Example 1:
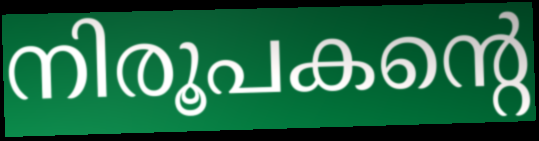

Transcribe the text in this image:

നിരൂപകന്റെ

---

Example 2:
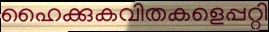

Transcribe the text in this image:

ഹൈക്കുകവിതകളെപ്പറ്റി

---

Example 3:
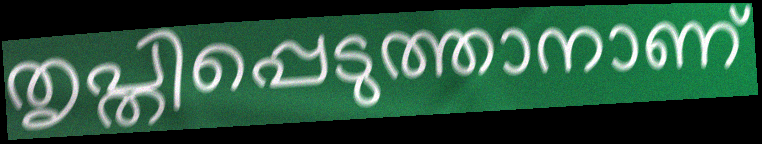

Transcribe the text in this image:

തൃപ്തിപ്പെടുത്താനാണ്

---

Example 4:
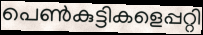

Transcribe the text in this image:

പെൺകുട്ടികളെപ്പറ്റി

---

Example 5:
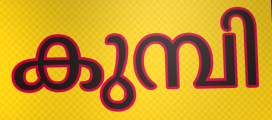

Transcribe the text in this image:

കുമ്പി